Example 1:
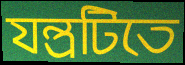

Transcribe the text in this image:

যন্ত্রটিতে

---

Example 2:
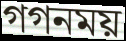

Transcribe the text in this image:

গগনময়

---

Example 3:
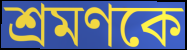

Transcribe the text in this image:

শ্রমণকে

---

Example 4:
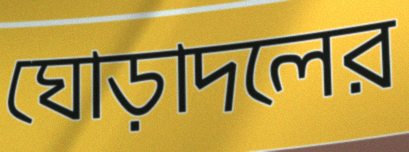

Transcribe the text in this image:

ঘোড়াদলের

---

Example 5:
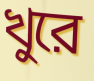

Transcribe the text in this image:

খুরে